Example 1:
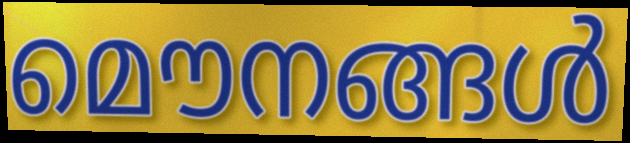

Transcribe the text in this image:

മൌനങ്ങൾ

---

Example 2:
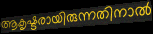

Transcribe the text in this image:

ആകൃഷ്ടരായിരുന്നതിനാൽ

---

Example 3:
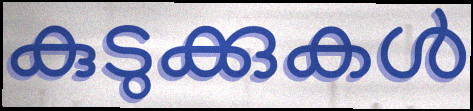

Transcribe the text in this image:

കുടുക്കുകൾ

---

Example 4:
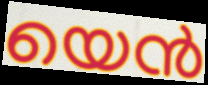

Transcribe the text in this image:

യെൻ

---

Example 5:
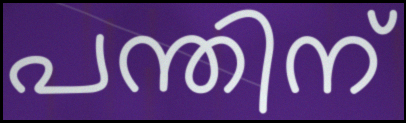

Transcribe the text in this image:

പന്തിന്